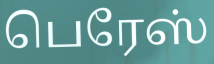
பெரேஸ்